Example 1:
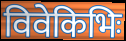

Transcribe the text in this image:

विवेकिभिः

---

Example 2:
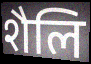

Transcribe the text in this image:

शैलि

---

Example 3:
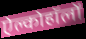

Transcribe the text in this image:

ऐल्कोहॉलों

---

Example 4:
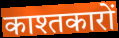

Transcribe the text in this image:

काश्तकारों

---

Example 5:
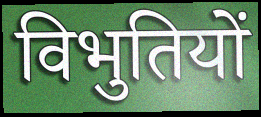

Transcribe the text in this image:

विभुतियों